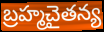
బ్రహ్మచైతన్య